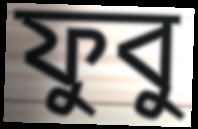
ফুবু